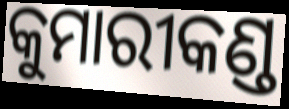
କୁମାରୀକଣ୍ଡ